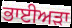
ਭਾਈਅੜਾ